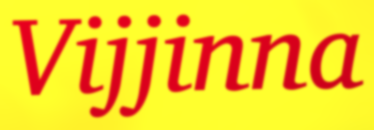
Vijjinna